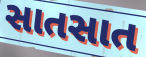
સાતસાત